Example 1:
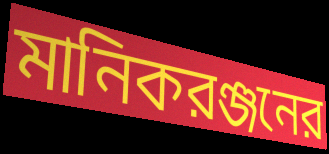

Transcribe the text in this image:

মানিকরঞ্জনের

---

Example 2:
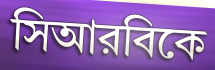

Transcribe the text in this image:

সিআরবিকে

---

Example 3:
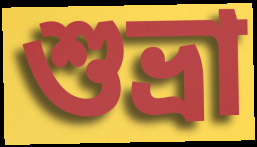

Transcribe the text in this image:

শুভ্রা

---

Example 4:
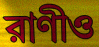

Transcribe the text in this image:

রাণীও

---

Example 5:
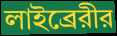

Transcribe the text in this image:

লাইব্রেরীর